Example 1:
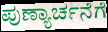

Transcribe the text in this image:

ಪುಣ್ಯಾರ್ಚನೆಗೆ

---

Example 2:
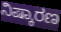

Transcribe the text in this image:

ನಿಷ್ಕಾರಣ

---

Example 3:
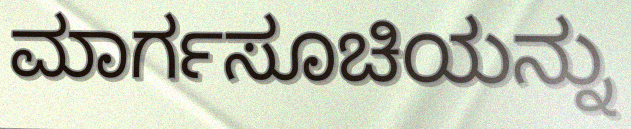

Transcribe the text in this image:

ಮಾರ್ಗಸೂಚಿಯನ್ನು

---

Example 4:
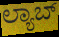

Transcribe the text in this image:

ಲ್ಯಾಬ್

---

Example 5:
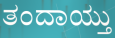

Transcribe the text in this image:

ತಂದಾಯ್ತು